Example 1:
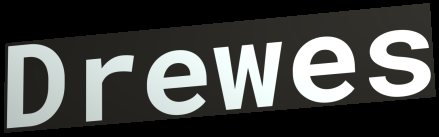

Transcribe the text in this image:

Drewes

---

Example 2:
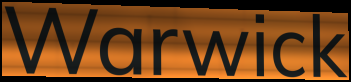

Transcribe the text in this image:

Warwick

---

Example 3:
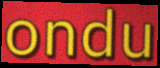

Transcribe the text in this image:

ondu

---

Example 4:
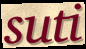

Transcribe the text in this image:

suti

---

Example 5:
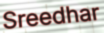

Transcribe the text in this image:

Sreedhar